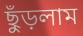
ছুঁড়লাম